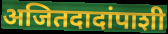
अजितदादांपाशी